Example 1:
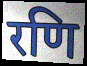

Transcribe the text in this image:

रणि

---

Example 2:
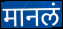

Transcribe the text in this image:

मानलं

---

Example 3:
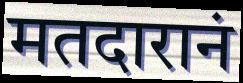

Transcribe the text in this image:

मतदारानं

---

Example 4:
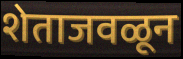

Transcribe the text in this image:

शेताजवळून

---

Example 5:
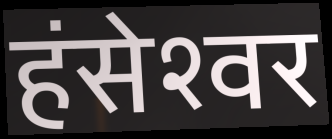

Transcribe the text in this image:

हंसेश्वर